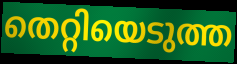
തെറ്റിയെടുത്ത